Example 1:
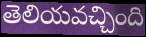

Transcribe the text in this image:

తెలియవచ్చింది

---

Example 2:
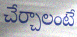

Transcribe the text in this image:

చేర్చాలంటే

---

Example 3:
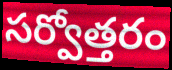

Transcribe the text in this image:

సర్వోత్తరం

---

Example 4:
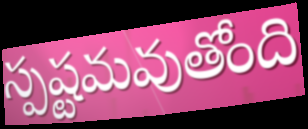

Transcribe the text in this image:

స్పష్టమవుతోంది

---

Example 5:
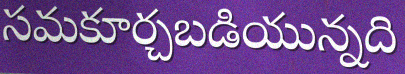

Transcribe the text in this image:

సమకూర్చబడియున్నది